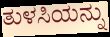
ತುಳಸಿಯನ್ನು